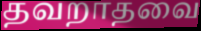
தவறாதவை